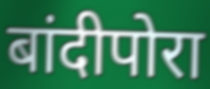
बांदीपोरा